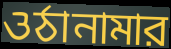
ওঠানামার